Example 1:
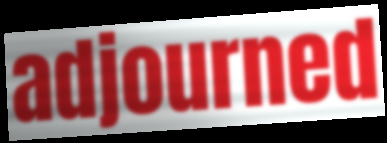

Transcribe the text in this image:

adjourned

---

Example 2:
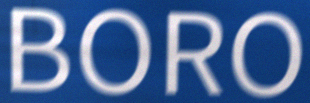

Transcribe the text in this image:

BORO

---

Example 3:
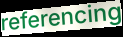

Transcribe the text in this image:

referencing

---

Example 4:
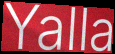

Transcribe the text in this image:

Yalla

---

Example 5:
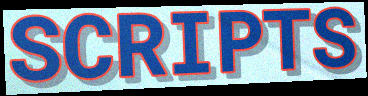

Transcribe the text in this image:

SCRIPTS